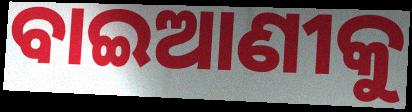
ବାଇଆଣୀକୁ